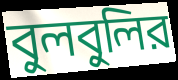
বুলবুলির